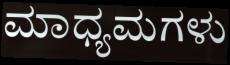
ಮಾಧ್ಯಮಗಳು